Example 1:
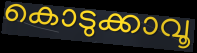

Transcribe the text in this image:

കൊടുക്കാവൂ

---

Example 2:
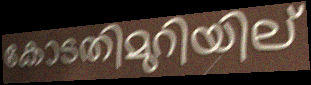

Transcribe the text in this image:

കോടതിമുറിയില്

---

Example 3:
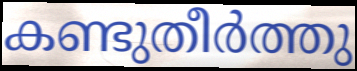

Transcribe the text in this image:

കണ്ടുതീർത്തു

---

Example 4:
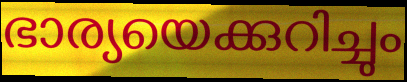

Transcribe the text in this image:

ഭാര്യയെക്കുറിച്ചും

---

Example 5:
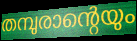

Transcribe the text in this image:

തമ്പുരാന്റെയും